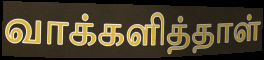
வாக்களித்தாள்